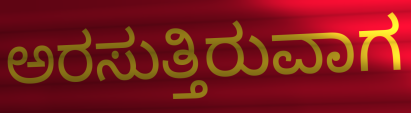
ಅರಸುತ್ತಿರುವಾಗ